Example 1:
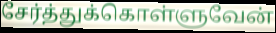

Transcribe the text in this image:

சேர்த்துக்கொள்ளுவேன்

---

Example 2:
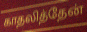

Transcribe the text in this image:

காதலித்தேன்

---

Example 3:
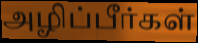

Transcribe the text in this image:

அழிப்பீர்கள்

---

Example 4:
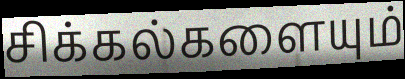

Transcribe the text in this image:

சிக்கல்களையும்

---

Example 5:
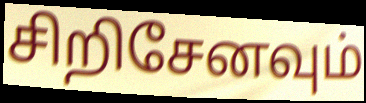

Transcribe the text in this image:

சிறிசேனவும்